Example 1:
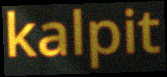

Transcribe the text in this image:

kalpit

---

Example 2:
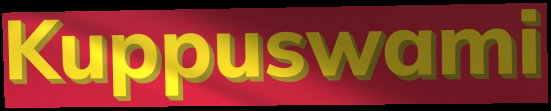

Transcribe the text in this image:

Kuppuswami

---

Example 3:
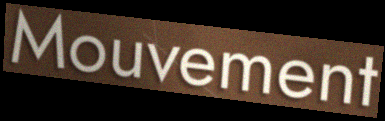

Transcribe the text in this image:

Mouvement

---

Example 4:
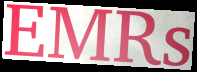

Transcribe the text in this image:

EMRs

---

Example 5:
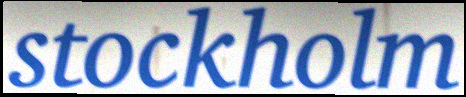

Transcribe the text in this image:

stockholm